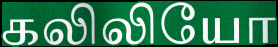
கலிலியோ